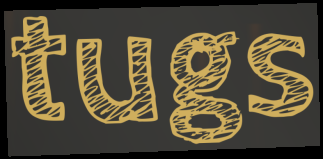
tugs